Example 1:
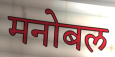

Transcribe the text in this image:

मनोबल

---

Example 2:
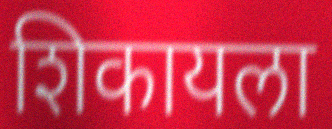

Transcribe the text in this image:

शिकायला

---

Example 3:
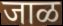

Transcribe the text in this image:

जाळ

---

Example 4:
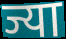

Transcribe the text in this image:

ज्या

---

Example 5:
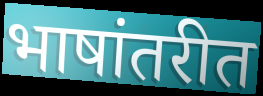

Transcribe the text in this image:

भाषांतरीत